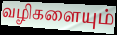
வழிகளையும்